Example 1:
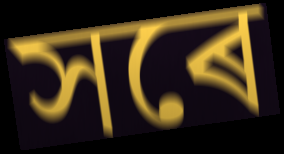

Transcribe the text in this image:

সৰে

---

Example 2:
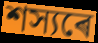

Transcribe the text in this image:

শস্যৰে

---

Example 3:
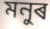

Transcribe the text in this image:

মনুৰ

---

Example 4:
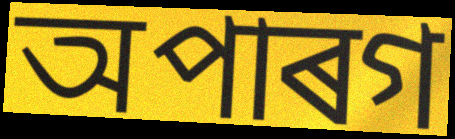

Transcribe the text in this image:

অপাৰগ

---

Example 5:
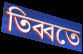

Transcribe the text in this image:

তিব্বতে